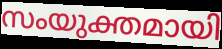
സംയുക്തമായി